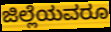
ಜಿಲ್ಲೆಯವರೂ